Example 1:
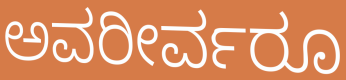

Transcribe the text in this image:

ಅವರೀರ್ವರೂ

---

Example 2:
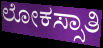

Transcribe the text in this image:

ಲೋಕಸ್ಸಾತಿ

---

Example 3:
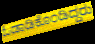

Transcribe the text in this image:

ಓಡಾಡಿಕೊಂಡಿದ್ದರು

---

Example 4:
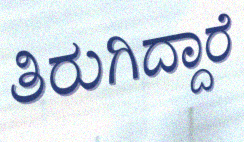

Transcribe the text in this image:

ತಿರುಗಿದ್ದಾರೆ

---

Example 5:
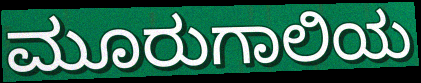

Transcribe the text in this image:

ಮೂರುಗಾಲಿಯ